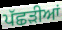
ਪੱਛੜੀਆਂ